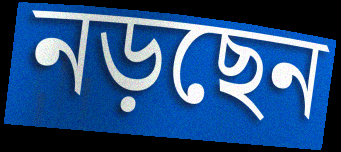
নড়ছেন